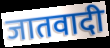
जातवादी